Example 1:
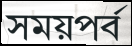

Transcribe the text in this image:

সময়পর্ব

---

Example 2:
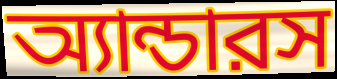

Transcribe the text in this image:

অ্যান্ডারস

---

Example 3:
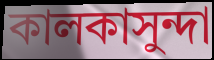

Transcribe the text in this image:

কালকাসুন্দা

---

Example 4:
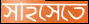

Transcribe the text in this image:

সাহসেতে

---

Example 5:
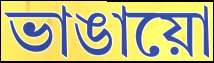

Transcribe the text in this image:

ভাঙায়ো